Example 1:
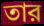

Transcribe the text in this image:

তার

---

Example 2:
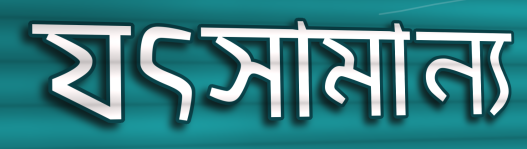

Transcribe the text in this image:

যৎসামান্য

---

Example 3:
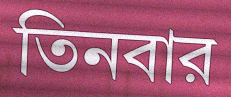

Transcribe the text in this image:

তিনবার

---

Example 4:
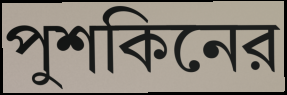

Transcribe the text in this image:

পুশকিনের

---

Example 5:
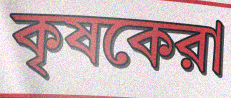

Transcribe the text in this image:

কৃষকেরা